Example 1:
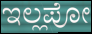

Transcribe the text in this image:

ಇಲ್ಲಪೋ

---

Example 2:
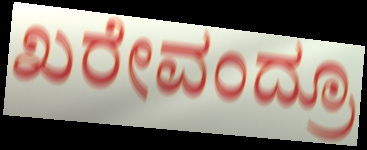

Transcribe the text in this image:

ಖರೇವಂದ್ರೂ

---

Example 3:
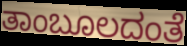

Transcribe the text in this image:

ತಾಂಬೂಲದಂತೆ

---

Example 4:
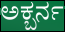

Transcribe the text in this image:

ಅಕ್ಬರ್ನ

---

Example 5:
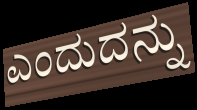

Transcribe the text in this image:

ಎಂದುದನ್ನು